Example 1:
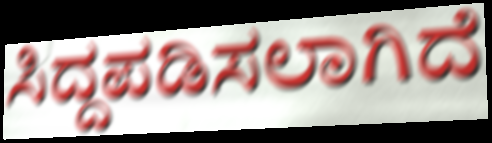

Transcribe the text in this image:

ಸಿದ್ದಪಡಿಸಲಾಗಿದೆ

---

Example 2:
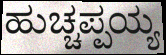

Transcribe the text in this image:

ಹುಚ್ಚಪ್ಪಯ್ಯ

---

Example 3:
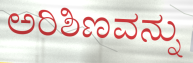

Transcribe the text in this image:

ಅರಿಶಿಣವನ್ನು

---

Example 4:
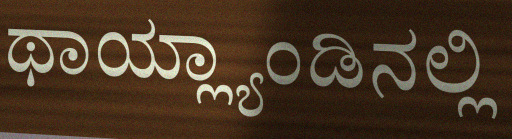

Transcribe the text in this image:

ಥಾಯ್ಲ್ಯಾಂಡಿನಲ್ಲಿ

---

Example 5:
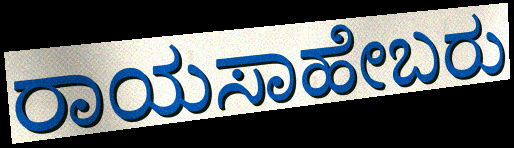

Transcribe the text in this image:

ರಾಯಸಾಹೇಬರು